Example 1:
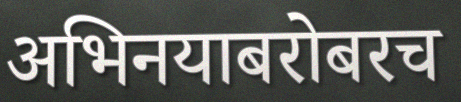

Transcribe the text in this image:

अभिनयाबरोबरच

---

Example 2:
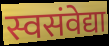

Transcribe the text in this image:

स्वसंवेद्या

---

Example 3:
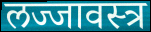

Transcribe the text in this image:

लज्जावस्त्र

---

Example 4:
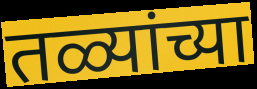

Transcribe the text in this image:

तळ्यांच्या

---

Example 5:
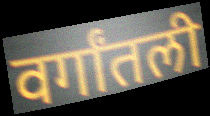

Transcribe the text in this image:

वर्गांतली